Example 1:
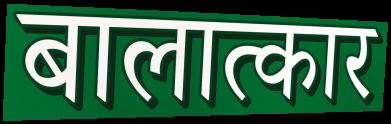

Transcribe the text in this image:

बालात्कार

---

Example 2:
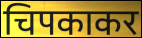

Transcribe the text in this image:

चिपकाकर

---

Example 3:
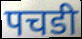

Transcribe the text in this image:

पचडी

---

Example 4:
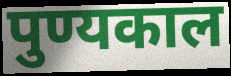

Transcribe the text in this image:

पुण्यकाल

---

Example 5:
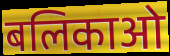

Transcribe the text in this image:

बलिकाओ